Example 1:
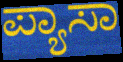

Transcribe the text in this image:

ಪ್ಯಾಸಾ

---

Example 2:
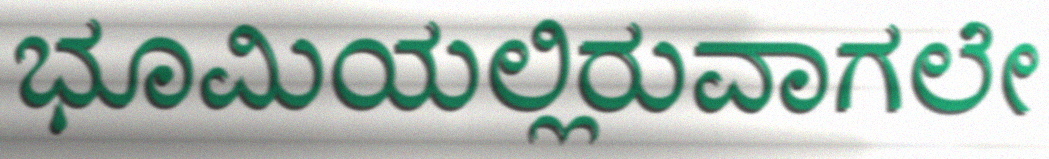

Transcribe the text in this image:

ಭೂಮಿಯಲ್ಲಿರುವಾಗಲೇ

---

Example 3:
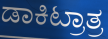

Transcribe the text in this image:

ಡಾಕಿಟ್ರಾತ್ರ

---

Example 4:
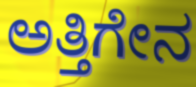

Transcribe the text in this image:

ಅತ್ತಿಗೇನ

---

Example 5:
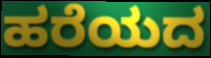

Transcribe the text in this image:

ಹರೆಯದ